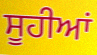
ਸੂਹੀਆਂ